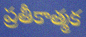
ప్రతీకాత్మక